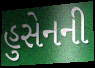
હુસેનની